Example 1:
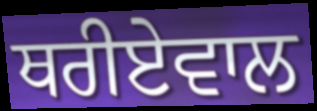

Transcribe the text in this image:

ਥਰੀਏਵਾਲ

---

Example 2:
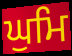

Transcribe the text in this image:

ਘੁਮਿ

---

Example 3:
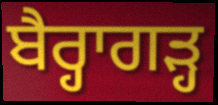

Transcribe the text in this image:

ਬੈਰ੍ਹਾਗੜ੍ਹ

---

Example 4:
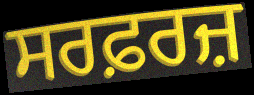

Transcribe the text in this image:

ਸਰਫ਼ਰਜ਼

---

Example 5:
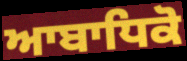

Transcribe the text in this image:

ਆਬਾਧਿਕੋ